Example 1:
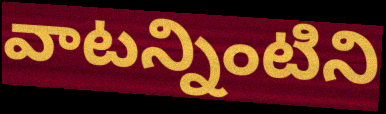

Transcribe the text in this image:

వాటన్నింటిని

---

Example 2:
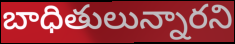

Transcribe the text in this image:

బాధితులున్నారని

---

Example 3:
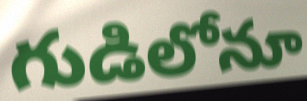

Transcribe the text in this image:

గుడిలోనూ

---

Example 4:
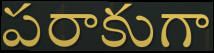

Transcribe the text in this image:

పరాకుగా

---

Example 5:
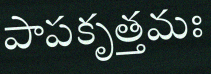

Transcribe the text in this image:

పాపకృత్తమః